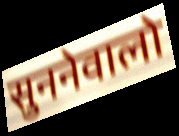
सुननेवालो